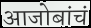
आजोबांचं